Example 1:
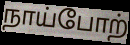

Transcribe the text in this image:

நாய்போற்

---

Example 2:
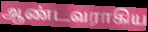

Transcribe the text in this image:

ஆண்டவராகிய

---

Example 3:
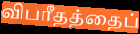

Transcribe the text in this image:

விபரீதத்தைப்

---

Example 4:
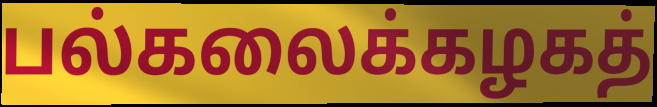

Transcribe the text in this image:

பல்கலைக்கழகத்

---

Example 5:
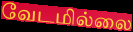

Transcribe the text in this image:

வேடமில்லை